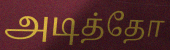
அடித்தோ